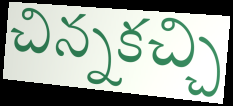
చిన్నకచ్చి